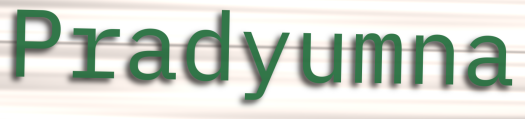
Pradyumna